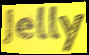
Jelly